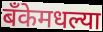
बँकेमधल्या